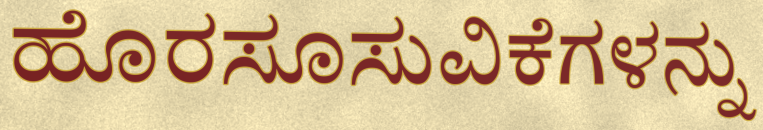
ಹೊರಸೂಸುವಿಕೆಗಳನ್ನು